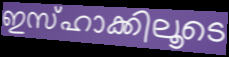
ഇസ്ഹാക്കിലൂടെ